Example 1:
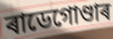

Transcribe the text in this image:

ৰাডেগোণ্ডাৰ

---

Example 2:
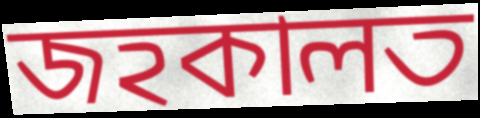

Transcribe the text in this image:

জহকালত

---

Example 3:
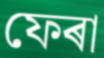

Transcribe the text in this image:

ফেৰা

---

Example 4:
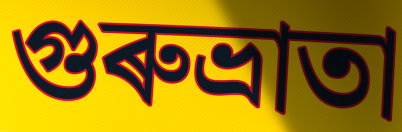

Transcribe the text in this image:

গুৰুভ্ৰাতা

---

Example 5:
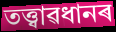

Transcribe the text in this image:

তত্ত্বাৱধানৰ